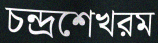
চন্দ্রশেখরম